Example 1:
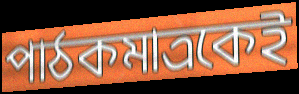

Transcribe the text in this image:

পাঠকমাত্রকেই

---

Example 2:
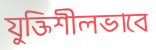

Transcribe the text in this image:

যুক্তিশীলভাবে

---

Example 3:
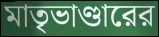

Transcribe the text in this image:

মাতৃভাণ্ডারের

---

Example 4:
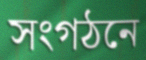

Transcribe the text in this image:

সংগঠনে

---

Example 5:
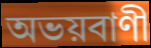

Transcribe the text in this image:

অভয়বাণী